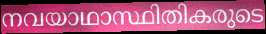
നവയാഥാസ്ഥിതികരുടെ